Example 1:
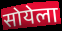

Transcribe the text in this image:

सोयेला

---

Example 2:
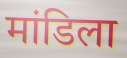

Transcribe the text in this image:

मांडिला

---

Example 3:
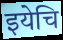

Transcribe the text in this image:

इयेचि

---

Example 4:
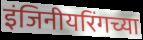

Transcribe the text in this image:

इंजिनीयरिंगच्या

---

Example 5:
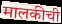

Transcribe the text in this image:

मालकीची